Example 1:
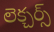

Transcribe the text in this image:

లెక్చర్స్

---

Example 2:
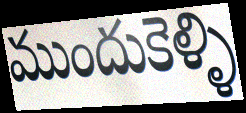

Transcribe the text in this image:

ముందుకెళ్ళి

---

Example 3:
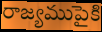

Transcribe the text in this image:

రాజ్యముపైకి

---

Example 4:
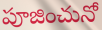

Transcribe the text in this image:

పూజించునో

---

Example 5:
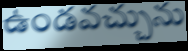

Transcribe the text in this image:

ఉండవచ్చును